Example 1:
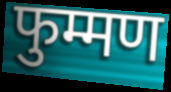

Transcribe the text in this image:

फुम्मण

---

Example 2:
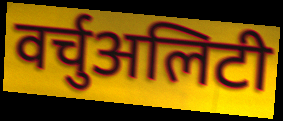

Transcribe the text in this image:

वर्चुअलिटी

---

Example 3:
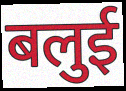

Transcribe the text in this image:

बलुई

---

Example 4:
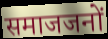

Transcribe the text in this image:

समाजजनों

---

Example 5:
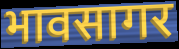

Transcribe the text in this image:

भावसागर